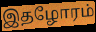
இதழோரம்